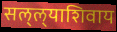
सल्ल्याशिवाय